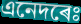
এনেদৰেঃ